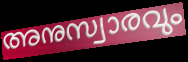
അനുസ്വാരവും